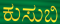
ಕುಸುಬಿ